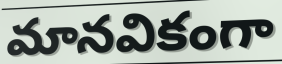
మానవికంగా